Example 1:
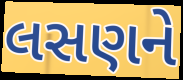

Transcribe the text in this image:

લસણને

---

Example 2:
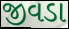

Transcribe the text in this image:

જીવડા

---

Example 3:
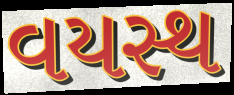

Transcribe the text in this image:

વયસ્થ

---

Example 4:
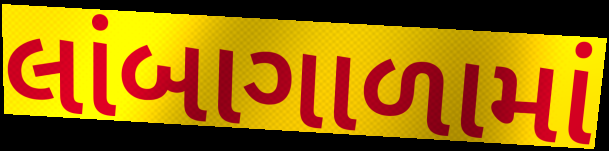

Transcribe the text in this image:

લાંબાગાળામાં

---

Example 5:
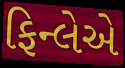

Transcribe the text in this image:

ફિન્લેએ